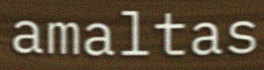
amaltas